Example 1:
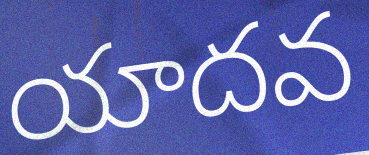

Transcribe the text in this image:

యాదవ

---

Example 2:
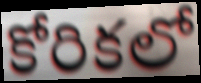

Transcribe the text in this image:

కోరికలో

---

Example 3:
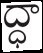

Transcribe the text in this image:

ద్ధా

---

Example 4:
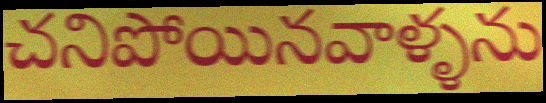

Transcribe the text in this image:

చనిపోయినవాళ్ళను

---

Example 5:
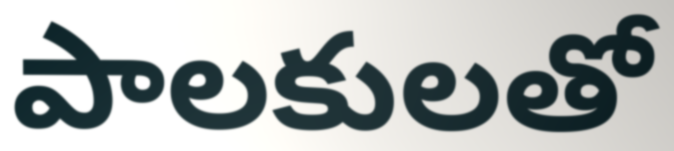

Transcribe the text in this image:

పాలకులతో